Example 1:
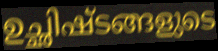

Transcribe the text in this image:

ഉച്ഛിഷ്ടങ്ങളുടെ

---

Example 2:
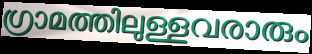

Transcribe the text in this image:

ഗ്രാമത്തിലുള്ളവരാരും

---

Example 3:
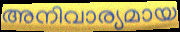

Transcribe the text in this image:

അനിവാര്യമായ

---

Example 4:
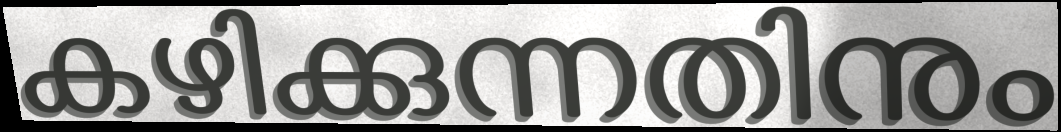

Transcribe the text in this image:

കഴിക്കുന്നതിനും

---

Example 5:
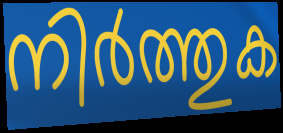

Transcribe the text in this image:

നിർത്തുക